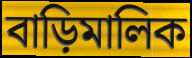
বাড়িমালিক